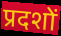
प्रदशों